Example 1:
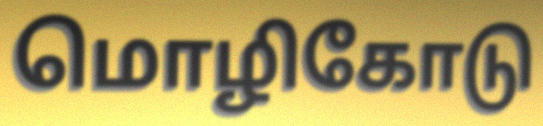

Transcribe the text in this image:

மொழிகோடு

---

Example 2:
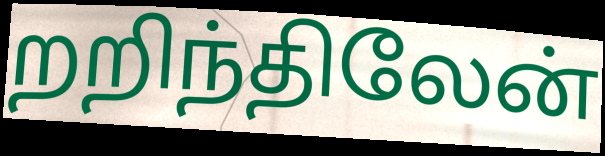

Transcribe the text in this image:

றறிந்திலேன்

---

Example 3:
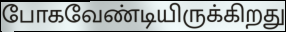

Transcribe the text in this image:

போகவேண்டியிருக்கிறது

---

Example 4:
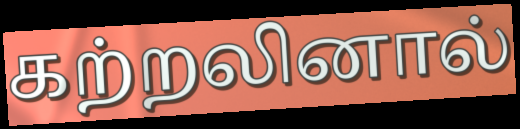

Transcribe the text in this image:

கற்றலினால்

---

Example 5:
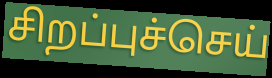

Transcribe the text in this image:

சிறப்புச்செய்